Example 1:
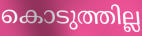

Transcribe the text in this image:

കൊടുത്തില്ല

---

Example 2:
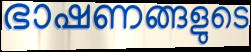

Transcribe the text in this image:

ഭാഷണങ്ങളുടെ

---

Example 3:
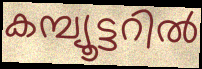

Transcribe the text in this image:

കമ്പ്യൂട്ടറിൽ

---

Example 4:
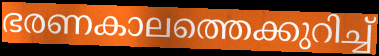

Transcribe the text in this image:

ഭരണകാലത്തെക്കുറിച്ച്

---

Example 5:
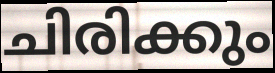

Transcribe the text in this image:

ചിരിക്കും